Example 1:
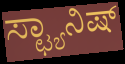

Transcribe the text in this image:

ಸ್ಟ್ಯಾನಿಷ್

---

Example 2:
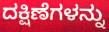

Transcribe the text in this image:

ದಕ್ಷಿಣೆಗಳನ್ನು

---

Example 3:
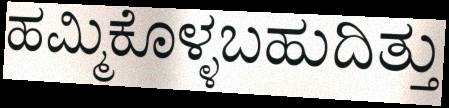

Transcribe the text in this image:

ಹಮ್ಮಿಕೊಳ್ಳಬಹುದಿತ್ತು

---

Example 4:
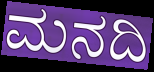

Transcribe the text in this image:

ಮನದಿ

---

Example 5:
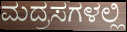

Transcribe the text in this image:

ಮದ್ರಸಗಳಲ್ಲಿ